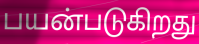
பயன்படுகிறது